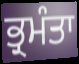
ਭ੍ਰਮੰਤਾ